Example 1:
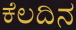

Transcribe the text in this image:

ಕೆಲದಿನ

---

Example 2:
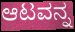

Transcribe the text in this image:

ಆಟವನ್ನ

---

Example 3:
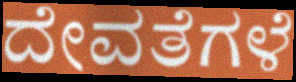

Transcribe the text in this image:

ದೇವತೆಗಳೆ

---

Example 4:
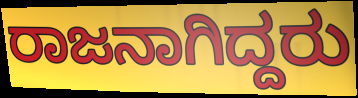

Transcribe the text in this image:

ರಾಜನಾಗಿದ್ದರು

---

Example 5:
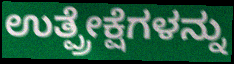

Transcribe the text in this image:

ಉತ್ಪ್ರೇಕ್ಷೆಗಳನ್ನು